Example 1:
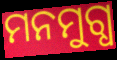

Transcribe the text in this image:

ମନମୁଗ୍ଧ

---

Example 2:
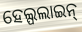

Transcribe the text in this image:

ହେଲ୍ପଲାଇନ୍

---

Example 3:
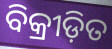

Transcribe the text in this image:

ବିକ୍ରୀଡ଼ିତ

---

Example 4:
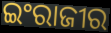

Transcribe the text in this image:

ଇଂରାଜୀର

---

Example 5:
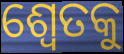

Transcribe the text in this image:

ଶ୍ଵେତକୁ